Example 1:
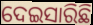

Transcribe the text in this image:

ଦେଇସାରିଛି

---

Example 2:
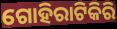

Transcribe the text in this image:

ଗୋହିରାଟିକିରି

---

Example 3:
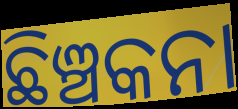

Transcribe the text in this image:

ଛିଞ୍ଚକନା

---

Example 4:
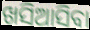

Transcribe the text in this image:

ଖସିଆସିବା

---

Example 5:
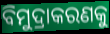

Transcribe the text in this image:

ବିମୁଦ୍ରାକରଣକୁ